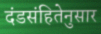
दंडसंहितेनुसार